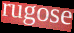
rugose